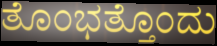
ತೊಂಭತ್ತೊಂದು